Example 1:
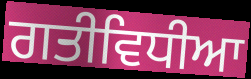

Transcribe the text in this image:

ਗਤੀਵਿਧੀਆ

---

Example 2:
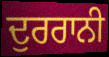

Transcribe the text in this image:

ਦੁਰਰਾਨੀ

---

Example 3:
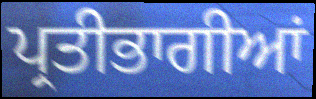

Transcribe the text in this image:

ਪ੍ਰਤੀਭਾਗੀਆਂ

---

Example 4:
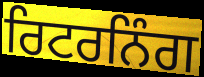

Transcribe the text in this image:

ਰਿਟਰਨਿੰਗ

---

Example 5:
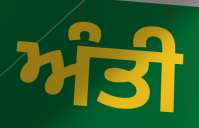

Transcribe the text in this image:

ਅੰਤੀ